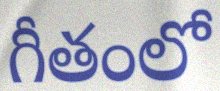
గీతంలో